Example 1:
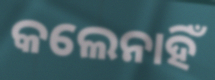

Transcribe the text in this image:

କଲେନାହିଁ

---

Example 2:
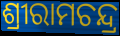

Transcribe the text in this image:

ଶ୍ରୀରାମଚନ୍ଦ୍ର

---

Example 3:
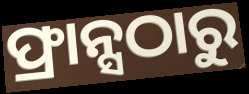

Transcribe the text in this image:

ଫ୍ରାନ୍ସଠାରୁ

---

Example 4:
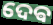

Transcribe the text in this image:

ଦେଵ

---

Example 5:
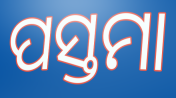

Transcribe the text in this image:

ପସ୍ତମା